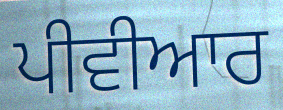
ਪੀਵੀਆਰ